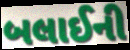
બલાઈની